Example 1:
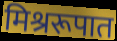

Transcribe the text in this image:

मिश्ररूपात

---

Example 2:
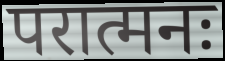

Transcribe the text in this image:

परात्मनः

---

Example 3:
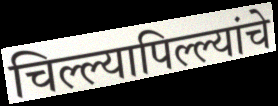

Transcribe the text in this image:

चिल्ल्यापिल्ल्यांचे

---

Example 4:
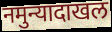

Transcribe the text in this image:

नमुन्यादाखल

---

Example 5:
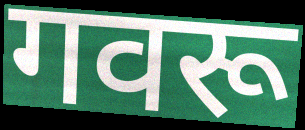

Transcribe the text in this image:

गवरू